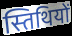
स्तिथियों